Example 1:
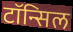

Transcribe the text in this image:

टॉन्सिल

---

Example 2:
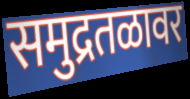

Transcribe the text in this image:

समुद्रतळावर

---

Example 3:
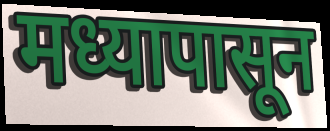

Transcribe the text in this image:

मध्यापासून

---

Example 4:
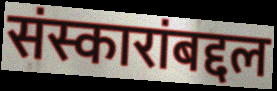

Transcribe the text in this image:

संस्कारांबद्दल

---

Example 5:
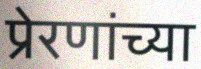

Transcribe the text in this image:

प्रेरणांच्या